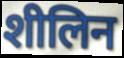
शीलिन